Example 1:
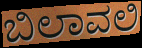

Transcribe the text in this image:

ಬಿಲಾವಲಿ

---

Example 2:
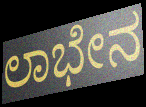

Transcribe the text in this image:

ಲಾಭೇನ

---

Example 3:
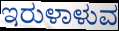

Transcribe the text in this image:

ಇರುಳಾಳುವ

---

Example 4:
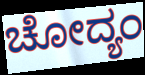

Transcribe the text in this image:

ಚೋದ್ಯಂ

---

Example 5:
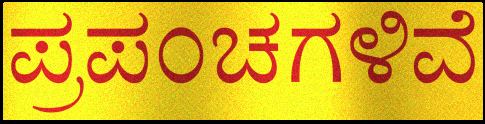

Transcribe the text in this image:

ಪ್ರಪಂಚಗಳಿವೆ